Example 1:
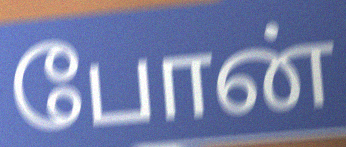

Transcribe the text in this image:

போன்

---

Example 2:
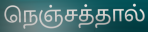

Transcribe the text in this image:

நெஞ்சத்தால்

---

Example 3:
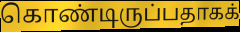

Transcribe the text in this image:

கொண்டிருப்பதாகக்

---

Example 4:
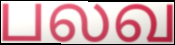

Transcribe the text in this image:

பலவ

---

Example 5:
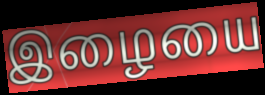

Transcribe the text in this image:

இழையை